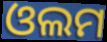
ଓଲମ